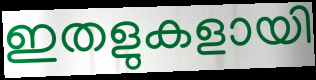
ഇതളുകളായി